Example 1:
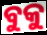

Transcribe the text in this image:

ବୁକୁ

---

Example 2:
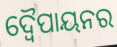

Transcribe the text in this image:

ଦ୍ୱୈପାୟନର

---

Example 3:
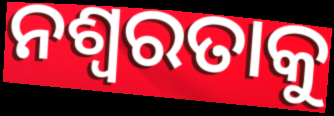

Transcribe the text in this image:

ନଶ୍ବରତାକୁ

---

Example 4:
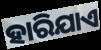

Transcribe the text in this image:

ହାରିଯାଏ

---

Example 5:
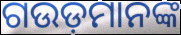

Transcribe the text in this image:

ଗଉଡ଼ମାନଙ୍କ